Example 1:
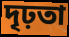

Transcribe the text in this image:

দৃঢ়তা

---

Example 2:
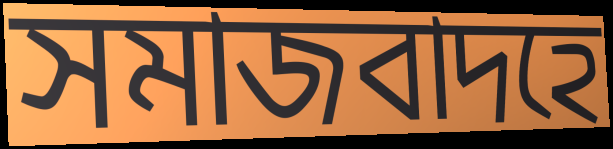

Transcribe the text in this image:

সমাজবাদহে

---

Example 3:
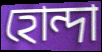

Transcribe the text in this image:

হোন্দা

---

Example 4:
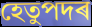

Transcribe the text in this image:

হেতুপদৰ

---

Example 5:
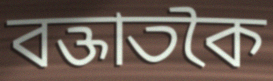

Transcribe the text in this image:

বক্তাতকৈ